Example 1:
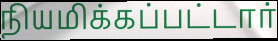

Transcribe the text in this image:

நியமிக்கப்பட்டார்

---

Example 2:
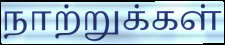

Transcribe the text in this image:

நாற்றுக்கள்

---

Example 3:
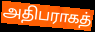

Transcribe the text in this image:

அதிபராகத்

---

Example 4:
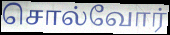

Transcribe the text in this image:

சொல்வோர்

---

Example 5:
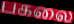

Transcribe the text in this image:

பகலை